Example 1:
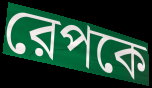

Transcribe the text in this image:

রেপকে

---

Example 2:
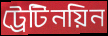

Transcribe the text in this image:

ট্রেটিনয়িন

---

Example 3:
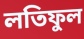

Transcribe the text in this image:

লতিফুল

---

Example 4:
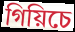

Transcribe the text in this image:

গিয়িচে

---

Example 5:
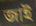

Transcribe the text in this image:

জাই